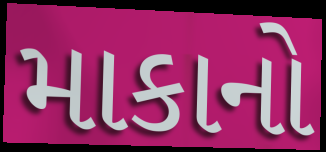
માકાનો